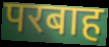
परबाह